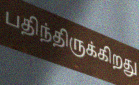
பதிந்திருக்கிறது